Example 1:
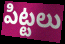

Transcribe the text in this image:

పిట్టలు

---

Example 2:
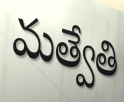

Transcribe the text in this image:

మత్వేతి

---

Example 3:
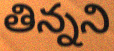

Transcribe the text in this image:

తిన్నని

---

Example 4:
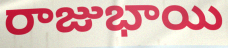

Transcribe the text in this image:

రాజుభాయి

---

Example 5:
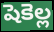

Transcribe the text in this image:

షెకెల్ల